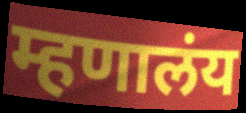
म्हणालंय